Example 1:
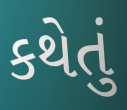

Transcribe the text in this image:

કથેતું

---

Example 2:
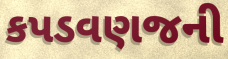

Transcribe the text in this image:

કપડવણજની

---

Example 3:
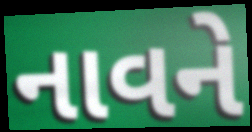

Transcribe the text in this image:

નાવને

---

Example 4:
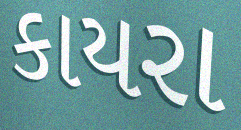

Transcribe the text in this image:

કાયરા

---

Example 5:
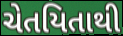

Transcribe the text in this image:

ચેતયિતાથી